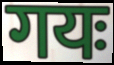
गयः